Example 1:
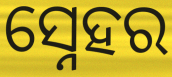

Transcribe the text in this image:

ସ୍ନେହର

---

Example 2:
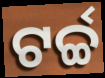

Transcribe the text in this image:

ଟର୍ଚ୍ଚ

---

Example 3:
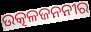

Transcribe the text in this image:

ଉତ୍କଳଜନନୀର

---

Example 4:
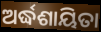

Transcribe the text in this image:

ଅର୍ଦ୍ଧଶାୟିତା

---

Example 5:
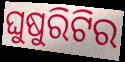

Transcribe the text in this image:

ଘୁଷୁରିଟିର